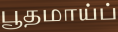
பூதமாய்ப்